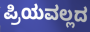
ಪ್ರಿಯವಲ್ಲದ